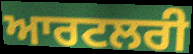
ਆਰਟਲਰੀ